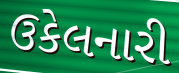
ઉકેલનારી